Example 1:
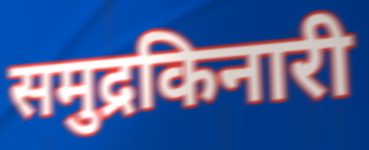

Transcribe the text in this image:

समुद्रकिनारी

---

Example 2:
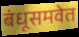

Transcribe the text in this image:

बंधूसमवेत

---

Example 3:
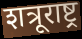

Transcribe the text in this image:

शत्रूराष्ट्र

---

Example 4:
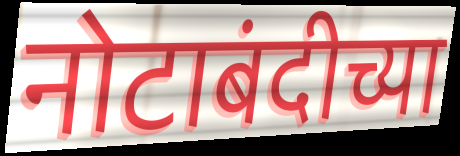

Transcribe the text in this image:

नोटाबंदीच्या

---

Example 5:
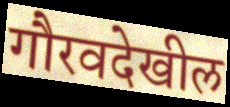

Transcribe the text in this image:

गौरवदेखील